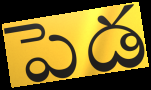
పెడ